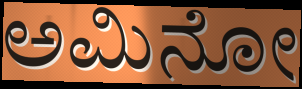
ಅಮಿನೋ